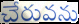
చేరువను